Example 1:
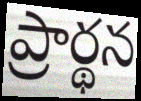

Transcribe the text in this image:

ప్రార్థన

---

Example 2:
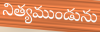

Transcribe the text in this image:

నిత్యముండును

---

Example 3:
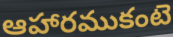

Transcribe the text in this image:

ఆహారముకంటె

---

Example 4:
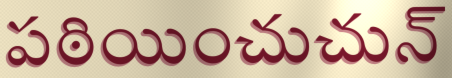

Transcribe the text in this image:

పఠియించుచున్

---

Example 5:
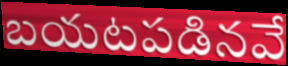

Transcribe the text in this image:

బయటపడినవే